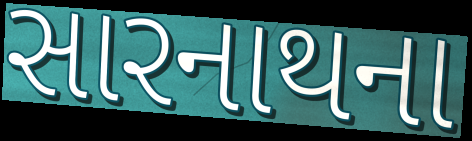
સારનાથના